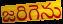
జరిగెను